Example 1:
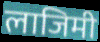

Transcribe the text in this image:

लाजिमी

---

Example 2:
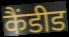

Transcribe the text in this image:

कैंडीड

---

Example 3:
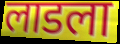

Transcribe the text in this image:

लाडला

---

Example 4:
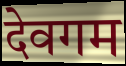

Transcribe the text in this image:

देवगम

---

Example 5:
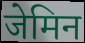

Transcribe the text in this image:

जेमिन